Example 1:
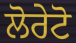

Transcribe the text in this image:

ਲੋਰੇਟੋ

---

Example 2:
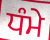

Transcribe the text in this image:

ਧੰਮੇ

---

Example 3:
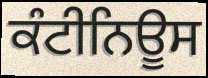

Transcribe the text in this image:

ਕੰਟੀਨਿਊਸ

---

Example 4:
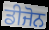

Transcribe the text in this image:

ਡੀਜੋਨ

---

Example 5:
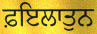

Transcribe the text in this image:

ਫ਼ਇਲਾਤੁਨ